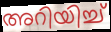
അറിയിച്ച്